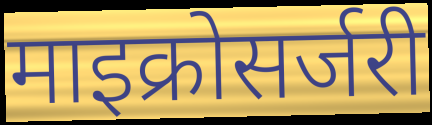
माइक्रोसर्जरी